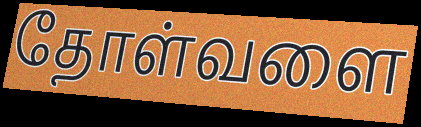
தோள்வளை